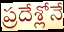
ప్రదేశ్లోనే